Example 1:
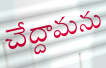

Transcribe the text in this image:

చేద్దామను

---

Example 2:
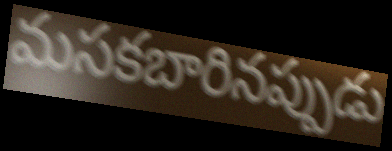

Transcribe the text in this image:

మసకబారినప్పుడు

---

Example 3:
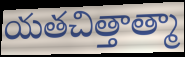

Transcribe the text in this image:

యతచిత్తాత్మా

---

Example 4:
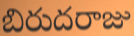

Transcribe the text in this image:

బిరుదరాజు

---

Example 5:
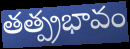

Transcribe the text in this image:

తత్ప్రభావం